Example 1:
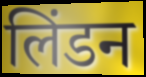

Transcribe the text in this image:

लिंडन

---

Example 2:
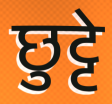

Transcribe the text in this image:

छुट्टे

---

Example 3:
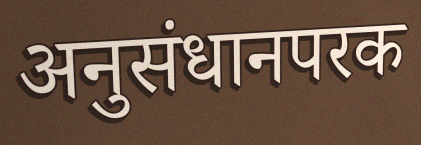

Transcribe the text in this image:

अनुसंधानपरक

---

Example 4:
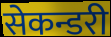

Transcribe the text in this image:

सेकन्डरी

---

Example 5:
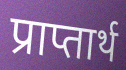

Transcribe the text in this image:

प्राप्तार्थ